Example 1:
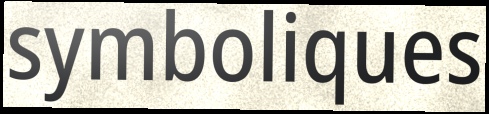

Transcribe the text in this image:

symboliques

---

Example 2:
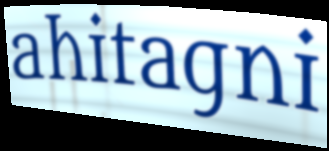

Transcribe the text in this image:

ahitagni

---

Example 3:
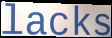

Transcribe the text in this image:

lacks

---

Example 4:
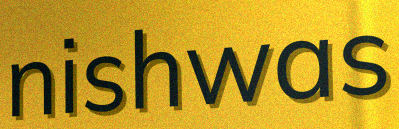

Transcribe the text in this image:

nishwas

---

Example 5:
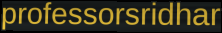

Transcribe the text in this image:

professorsridhar